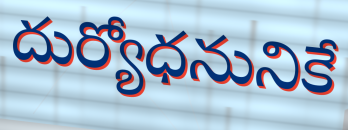
దుర్యోధనునికే